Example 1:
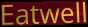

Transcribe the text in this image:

Eatwell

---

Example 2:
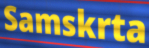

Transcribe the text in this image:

Samskrta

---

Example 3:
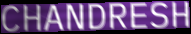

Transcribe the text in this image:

CHANDRESH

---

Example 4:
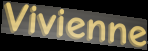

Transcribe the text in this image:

Vivienne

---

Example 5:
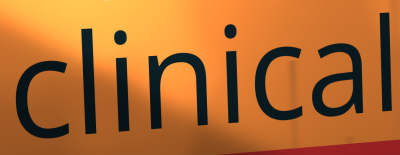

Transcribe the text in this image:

clinical